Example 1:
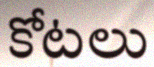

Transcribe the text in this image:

కోటలు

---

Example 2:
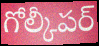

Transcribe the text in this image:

గోల్కీపర్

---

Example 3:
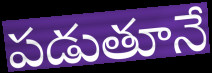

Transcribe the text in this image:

పడుతూనే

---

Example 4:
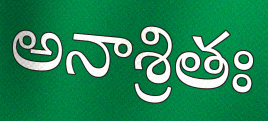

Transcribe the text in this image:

అనాశ్రితః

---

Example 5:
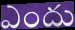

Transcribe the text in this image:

ఎందు